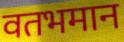
वतभमान